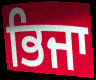
ਭਿਜਾ